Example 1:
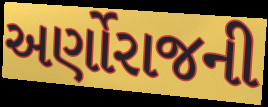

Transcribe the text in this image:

અર્ણોરાજની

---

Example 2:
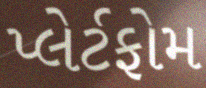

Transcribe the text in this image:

પ્લેર્ટફોમ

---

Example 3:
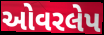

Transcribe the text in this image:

ઓવરલેપ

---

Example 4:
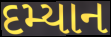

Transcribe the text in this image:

દમ્યાન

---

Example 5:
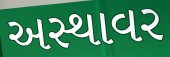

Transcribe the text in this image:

અસ્થાવર